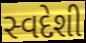
સ્વદેશી